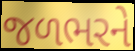
જળભરને